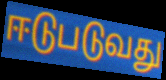
ஈடுபடுவது